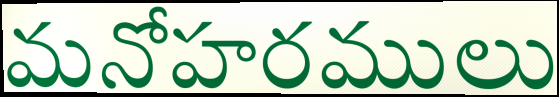
మనోహరములు